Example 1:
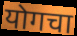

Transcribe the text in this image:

योगचा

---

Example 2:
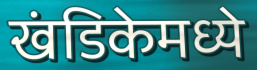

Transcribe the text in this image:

खंडिकेमध्ये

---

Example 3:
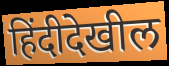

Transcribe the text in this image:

हिंदीदेखील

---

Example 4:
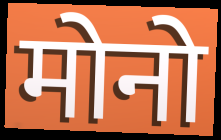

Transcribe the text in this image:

मोनो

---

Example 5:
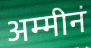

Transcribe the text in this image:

अम्मीनं